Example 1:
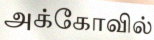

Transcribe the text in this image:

அக்கோவில்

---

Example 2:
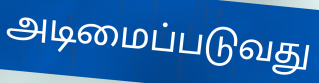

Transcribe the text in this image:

அடிமைப்படுவது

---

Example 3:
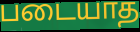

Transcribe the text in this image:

படையாத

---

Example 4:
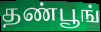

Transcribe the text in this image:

தண்பூங்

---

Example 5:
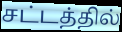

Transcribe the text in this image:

சட்டத்தில்